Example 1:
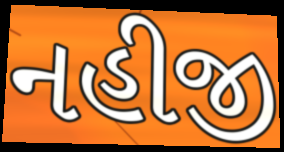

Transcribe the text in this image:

નહીજી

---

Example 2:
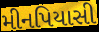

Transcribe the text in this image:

મીનપિયાસી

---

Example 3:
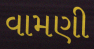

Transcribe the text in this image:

વામણી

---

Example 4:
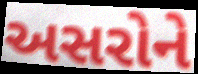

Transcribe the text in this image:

અસરોને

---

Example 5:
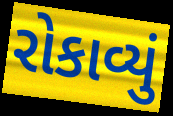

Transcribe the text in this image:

રોકાવ્યું